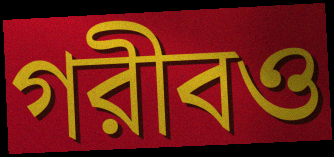
গরীবও